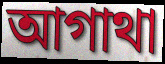
আগাথা